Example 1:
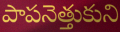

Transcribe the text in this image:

పాపనెత్తుకుని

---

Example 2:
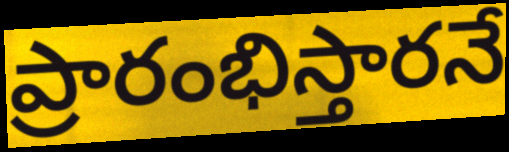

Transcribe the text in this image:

ప్రారంభిస్తారనే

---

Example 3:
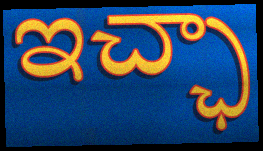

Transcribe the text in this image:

ఇచ్ఛా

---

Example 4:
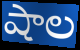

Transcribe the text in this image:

షాల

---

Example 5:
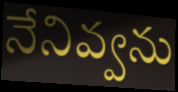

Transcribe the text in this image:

నేనివ్వను